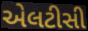
એલટીસી